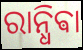
ରାନ୍ଧିଵା